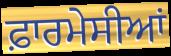
ਫ਼ਾਰਮੇਸੀਆਂ